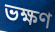
ভক্ষণ